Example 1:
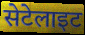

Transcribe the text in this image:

सेटेलाइट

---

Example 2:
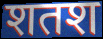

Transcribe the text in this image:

शतश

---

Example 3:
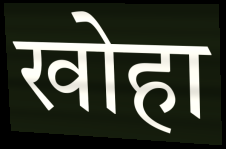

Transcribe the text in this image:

खोहा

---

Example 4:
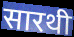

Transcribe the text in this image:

सारथी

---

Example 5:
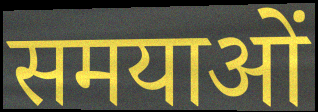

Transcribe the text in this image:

समयाओं